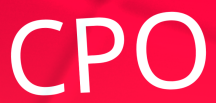
CPO